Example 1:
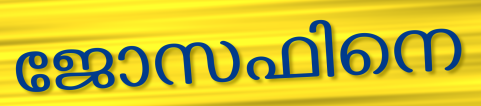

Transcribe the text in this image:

ജോസഫിനെ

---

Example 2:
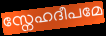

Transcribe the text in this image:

സ്നേഹദീപമേ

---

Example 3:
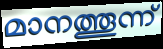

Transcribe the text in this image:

മാനത്തൂന്ന്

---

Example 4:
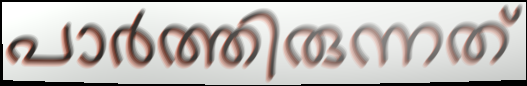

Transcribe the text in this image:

പാർത്തിരുന്നത്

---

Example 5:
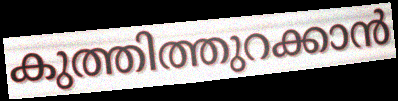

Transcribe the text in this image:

കുത്തിത്തുറക്കാൻ